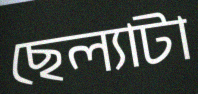
ছেল্যাটা